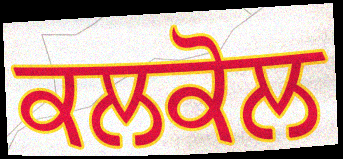
ਕਲਕੋਲ